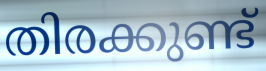
തിരക്കുണ്ട്